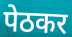
पेठकर